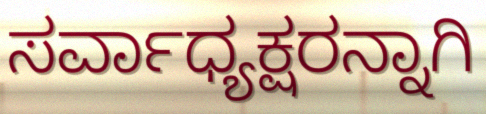
ಸರ್ವಾಧ್ಯಕ್ಷರನ್ನಾಗಿ